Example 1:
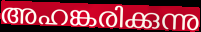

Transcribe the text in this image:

അഹങ്കരിക്കുന്നു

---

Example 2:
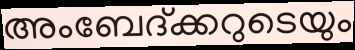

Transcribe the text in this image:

അംബേദ്ക്കറുടെയും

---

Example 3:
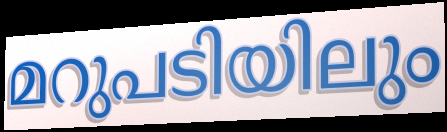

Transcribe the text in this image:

മറുപടിയിലും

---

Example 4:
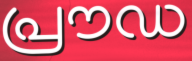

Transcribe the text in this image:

പ്രൗഡ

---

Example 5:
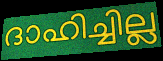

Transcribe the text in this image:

ദാഹിച്ചില്ല